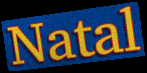
Natal